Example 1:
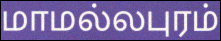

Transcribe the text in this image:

மாமல்லபுரம்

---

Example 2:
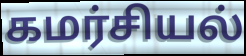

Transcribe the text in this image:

கமர்சியல்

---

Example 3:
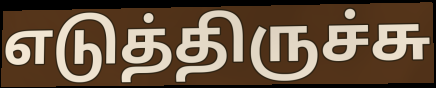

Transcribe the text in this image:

எடுத்திருச்சு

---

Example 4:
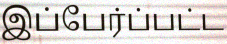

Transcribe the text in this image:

இப்பேர்ப்பட்ட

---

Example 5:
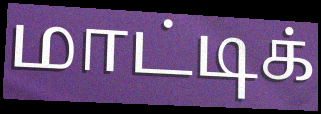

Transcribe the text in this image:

மாட்டிக்